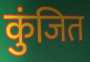
कुंजित